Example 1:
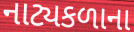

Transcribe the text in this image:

નાટ્યકળાના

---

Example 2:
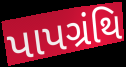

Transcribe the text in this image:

પાપગ્રંથિ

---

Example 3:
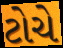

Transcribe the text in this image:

ટોચે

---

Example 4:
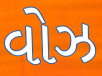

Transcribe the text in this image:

વોઝ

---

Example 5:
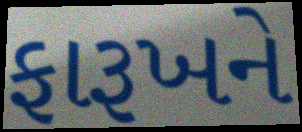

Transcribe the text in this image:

ફારૂખને